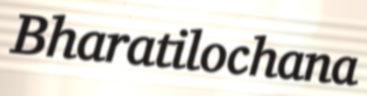
Bharatilochana